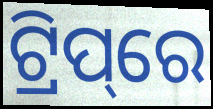
ଟ୍ରିପ୍‌ରେ